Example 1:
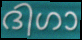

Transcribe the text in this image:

ദിഗാ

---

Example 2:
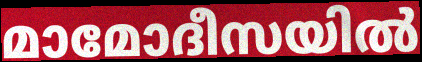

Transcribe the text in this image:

മാമോദീസയിൽ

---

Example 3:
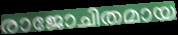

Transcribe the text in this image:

രാജോചിതമായ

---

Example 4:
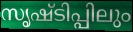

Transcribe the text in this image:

സൃഷ്ടിപ്പിലും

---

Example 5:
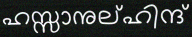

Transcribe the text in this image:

ഹസ്സാനുല്ഹിന്ദ്